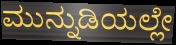
ಮುನ್ನುಡಿಯಲ್ಲೇ